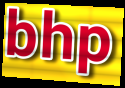
bhp